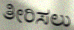
ತೀರಿಸಲು